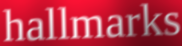
hallmarks